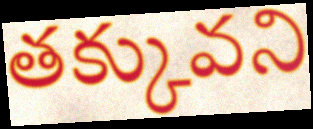
తక్కువని